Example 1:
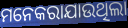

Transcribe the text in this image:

ମନେକରାଯାଉଥିଲା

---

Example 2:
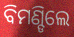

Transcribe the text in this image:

ବିମଣ୍ଡିଲେ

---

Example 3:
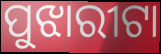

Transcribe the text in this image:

ପୁଝାରୀଟା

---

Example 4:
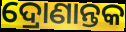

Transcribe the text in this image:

ଦ୍ରୋଣାନ୍ତକ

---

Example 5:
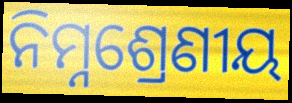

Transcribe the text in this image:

ନିମ୍ନଶ୍ରେଣୀୟ